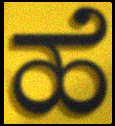
ಹೆ